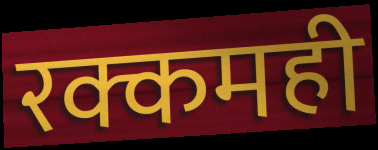
रक्कमही